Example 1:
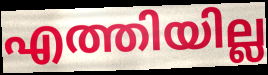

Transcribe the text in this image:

എത്തിയില്ല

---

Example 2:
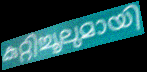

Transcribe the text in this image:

കുറ്റിച്ചൂലുമായി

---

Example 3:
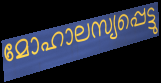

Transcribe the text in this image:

മോഹാലസ്യപ്പെട്ടു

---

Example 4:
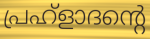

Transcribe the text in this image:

പ്രഹ്ളാദന്റെ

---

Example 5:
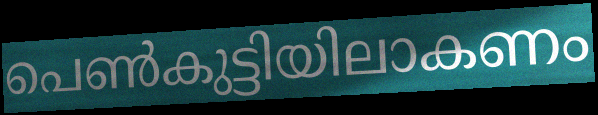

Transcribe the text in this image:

പെൺകുട്ടിയിലാകണം